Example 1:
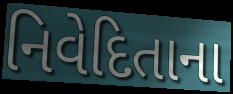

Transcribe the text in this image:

નિવેદિતાના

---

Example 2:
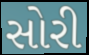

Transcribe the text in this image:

સોરી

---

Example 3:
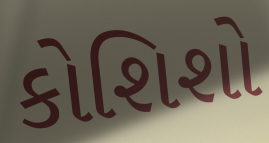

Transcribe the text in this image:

કોશિશો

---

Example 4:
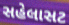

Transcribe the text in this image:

સહેલાસટ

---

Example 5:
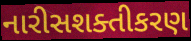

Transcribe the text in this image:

નારીસશક્તીકરણ